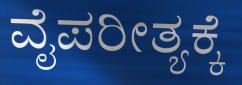
ವೈಪರೀತ್ಯಕ್ಕೆ